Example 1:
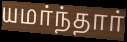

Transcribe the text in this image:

யமர்ந்தார்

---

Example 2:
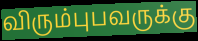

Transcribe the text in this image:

விரும்புபவருக்கு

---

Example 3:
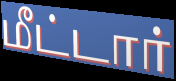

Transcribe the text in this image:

மீட்டார்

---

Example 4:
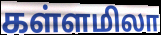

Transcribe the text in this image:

கள்ளமிலா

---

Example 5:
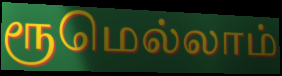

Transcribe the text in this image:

ரூமெல்லாம்